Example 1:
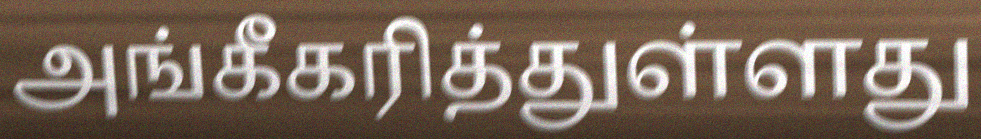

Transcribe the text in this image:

அங்கீகரித்துள்ளது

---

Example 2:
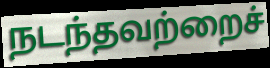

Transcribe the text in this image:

நடந்தவற்றைச்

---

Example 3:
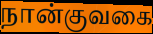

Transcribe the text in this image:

நான்குவகை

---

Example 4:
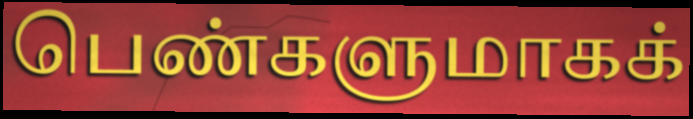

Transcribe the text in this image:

பெண்களுமாகக்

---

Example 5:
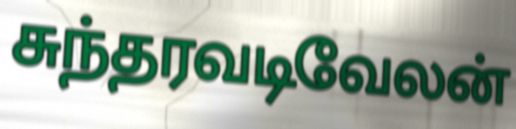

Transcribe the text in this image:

சுந்தரவடிவேலன்